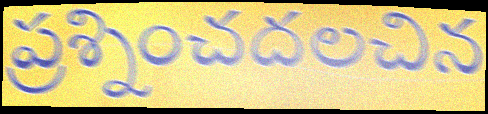
ప్రశ్నించదలచిన